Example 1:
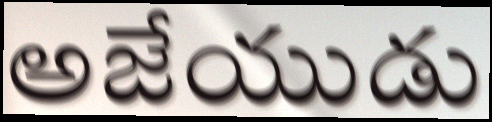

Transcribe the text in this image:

అజేయుడు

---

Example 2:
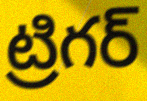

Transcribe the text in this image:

ట్రిగర్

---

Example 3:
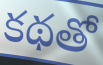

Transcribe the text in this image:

కథతో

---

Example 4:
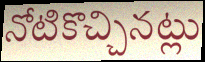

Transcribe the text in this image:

నోటికొచ్చినట్లు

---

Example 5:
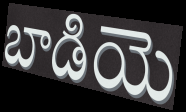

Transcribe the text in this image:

బాడియె